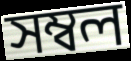
সম্বল